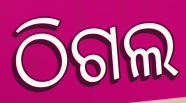
ଠିଗଲ